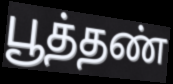
பூத்தண்